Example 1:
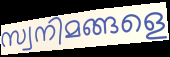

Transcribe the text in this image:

സ്വനിമങ്ങളെ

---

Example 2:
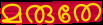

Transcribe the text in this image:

മരുതേ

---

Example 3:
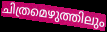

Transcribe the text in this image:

ചിത്രമെഴുത്തിലും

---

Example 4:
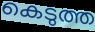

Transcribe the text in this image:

കെടുത്ത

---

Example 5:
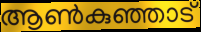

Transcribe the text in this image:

ആൺകുഞ്ഞാട്